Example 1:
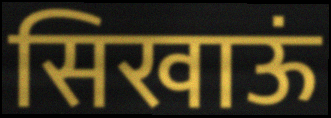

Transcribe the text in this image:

सिखाऊं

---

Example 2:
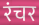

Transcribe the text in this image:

रंचर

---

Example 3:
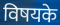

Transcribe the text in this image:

विषयके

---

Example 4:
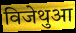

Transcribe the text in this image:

विजेथुआ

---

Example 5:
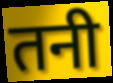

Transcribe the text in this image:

तनी